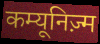
कम्यूनिज़्म